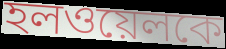
হলওয়েলকে